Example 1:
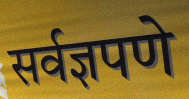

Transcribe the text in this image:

सर्वज्ञपणे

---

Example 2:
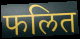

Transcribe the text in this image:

फलित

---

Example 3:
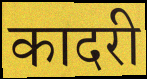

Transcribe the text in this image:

कादरी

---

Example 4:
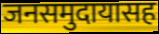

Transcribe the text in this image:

जनसमुदायासह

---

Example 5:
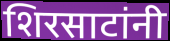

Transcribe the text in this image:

शिरसाटांनी